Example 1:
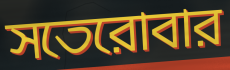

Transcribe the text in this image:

সতেরোবার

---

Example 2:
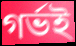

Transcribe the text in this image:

গর্ভই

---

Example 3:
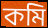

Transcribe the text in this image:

কমি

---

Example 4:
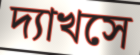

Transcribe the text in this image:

দ্যাখসে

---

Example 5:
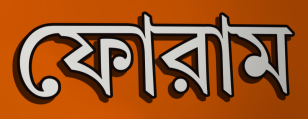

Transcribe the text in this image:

ফোরাম